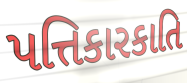
પત્તિકારકાતિ